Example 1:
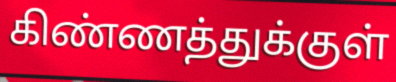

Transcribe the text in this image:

கிண்ணத்துக்குள்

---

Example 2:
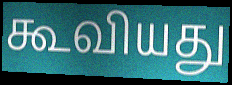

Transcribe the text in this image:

கூவியது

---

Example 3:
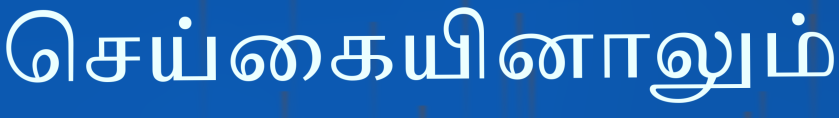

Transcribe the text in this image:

செய்கையினாலும்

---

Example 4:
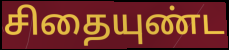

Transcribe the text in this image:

சிதையுண்ட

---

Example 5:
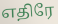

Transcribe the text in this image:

எதிரே